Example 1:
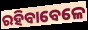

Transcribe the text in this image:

ରହିବାବେଳେ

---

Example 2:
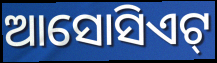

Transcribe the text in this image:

ଆସୋସିଏଟ୍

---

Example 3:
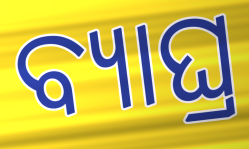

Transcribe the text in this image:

ବ୍ୟାଘ୍ର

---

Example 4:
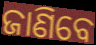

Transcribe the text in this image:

ଜାଣିବେ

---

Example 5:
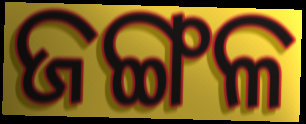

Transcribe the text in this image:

ଜଙ୍ଗଳ